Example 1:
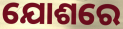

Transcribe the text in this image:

ଯୋଶରେ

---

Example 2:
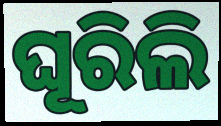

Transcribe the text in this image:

ଘୂରିଲି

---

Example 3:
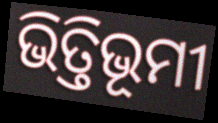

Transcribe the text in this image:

ଭିତ୍ତିଭୂମୀ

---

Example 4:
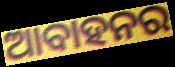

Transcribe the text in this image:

ଆବାହନର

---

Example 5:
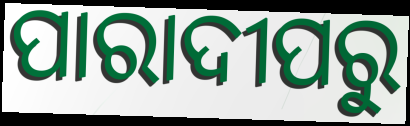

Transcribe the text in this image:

ପାରାଦୀପରୁ